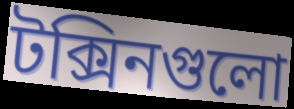
টক্সিনগুলো